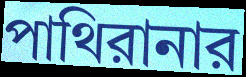
পাথিরানার